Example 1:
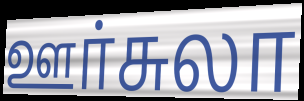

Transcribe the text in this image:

ஊர்சுலா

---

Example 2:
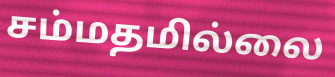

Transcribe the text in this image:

சம்மதமில்லை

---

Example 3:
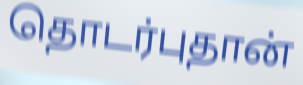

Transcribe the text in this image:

தொடர்புதான்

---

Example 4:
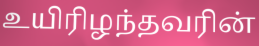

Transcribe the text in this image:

உயிரிழந்தவரின்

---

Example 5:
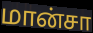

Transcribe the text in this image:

மான்சா